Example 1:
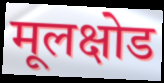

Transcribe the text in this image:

मूलक्षोड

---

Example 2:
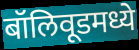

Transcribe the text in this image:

बॉलिवूडमध्ये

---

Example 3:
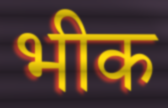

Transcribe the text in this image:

भीक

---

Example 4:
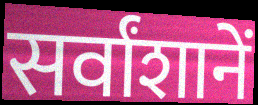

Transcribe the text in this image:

सर्वांशानें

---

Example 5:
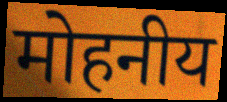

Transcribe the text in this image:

मोहनीय